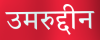
उमरुद्दीन